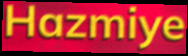
Hazmiye